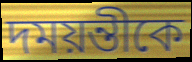
দময়ন্তীকে